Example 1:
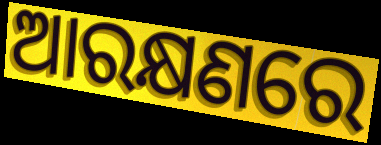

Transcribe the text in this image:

ଆରକ୍ଷଣରେ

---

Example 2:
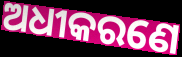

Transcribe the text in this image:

ଅଧୀକରଣେ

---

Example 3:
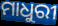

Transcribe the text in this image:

ମାଧୁରୀ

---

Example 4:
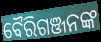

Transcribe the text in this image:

ବୈରିଗଞ୍ଜନଙ୍କ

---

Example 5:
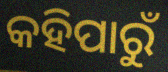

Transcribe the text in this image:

କହିପାରୁଁ